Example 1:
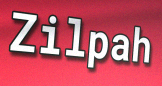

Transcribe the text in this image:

Zilpah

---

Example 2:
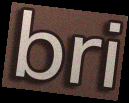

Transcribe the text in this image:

bri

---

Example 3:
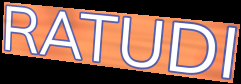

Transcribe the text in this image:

RATUDI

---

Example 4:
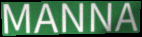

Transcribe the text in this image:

MANNA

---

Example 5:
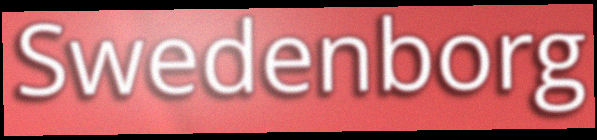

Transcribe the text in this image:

Swedenborg